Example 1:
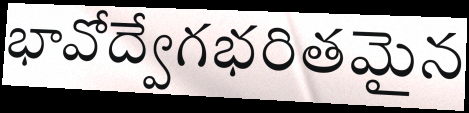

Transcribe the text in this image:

భావోద్వేగభరితమైన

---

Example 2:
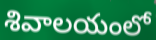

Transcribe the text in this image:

శివాలయంలో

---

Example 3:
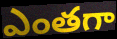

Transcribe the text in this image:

ఎంతగా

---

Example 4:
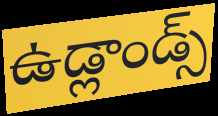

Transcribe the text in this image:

ఉడ్లాండ్స్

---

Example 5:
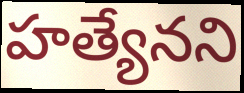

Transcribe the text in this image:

హత్యేనని